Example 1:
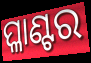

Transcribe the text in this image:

ପ୍ଳାଣ୍ଟର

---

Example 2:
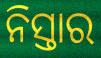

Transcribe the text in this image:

ନିସ୍ତାର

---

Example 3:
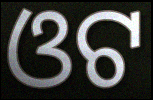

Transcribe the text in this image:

ଓଟ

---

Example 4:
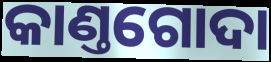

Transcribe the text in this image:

କାଣ୍ତଗୋଦା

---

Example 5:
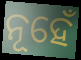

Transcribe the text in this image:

ନୂହେଁ